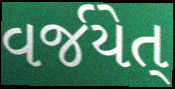
વર્જયેત્